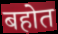
बहोत